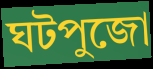
ঘটপুজো